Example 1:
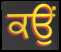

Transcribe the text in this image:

ਕਉਂ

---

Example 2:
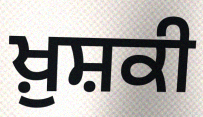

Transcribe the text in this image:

ਖ਼ੁਸ਼ਕੀ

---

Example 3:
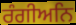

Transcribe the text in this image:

ਰੰਗੀਅਨਿ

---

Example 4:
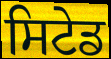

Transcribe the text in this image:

ਸਿਟੇਡ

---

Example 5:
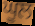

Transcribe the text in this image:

ਘੂਲ